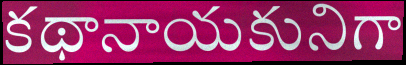
కథానాయకునిగా